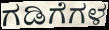
ಗಡಿಗೆಗಳ